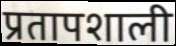
प्रतापशाली